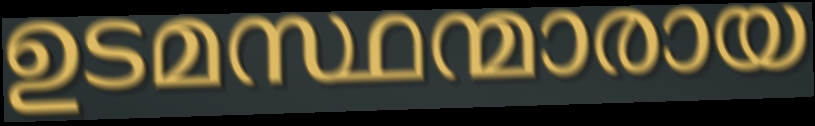
ഉടമസ്ഥന്മാരായ